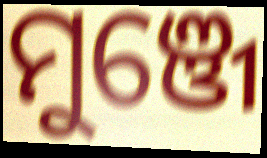
ମୁଞ୍ଜେ